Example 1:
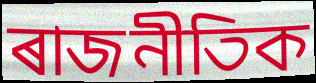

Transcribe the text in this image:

ৰাজনীতিক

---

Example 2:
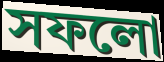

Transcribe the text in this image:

সফলো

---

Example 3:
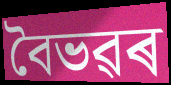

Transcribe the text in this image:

বৈভৱৰ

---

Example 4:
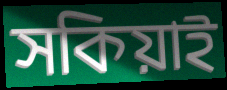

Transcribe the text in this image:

সকিয়াই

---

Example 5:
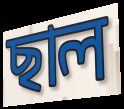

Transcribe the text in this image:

ছাল